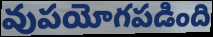
వుపయోగపడింది